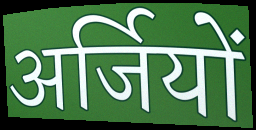
अर्जियों